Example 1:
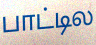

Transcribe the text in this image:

பாட்டில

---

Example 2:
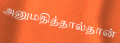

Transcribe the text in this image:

அனுமதித்தால்தான்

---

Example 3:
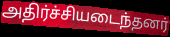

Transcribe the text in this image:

அதிர்ச்சியடைந்தனர்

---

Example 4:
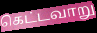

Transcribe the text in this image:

கெட்டவாறு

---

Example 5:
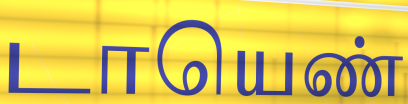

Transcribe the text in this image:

டாயெண்